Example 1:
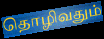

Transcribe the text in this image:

தொழிவதும்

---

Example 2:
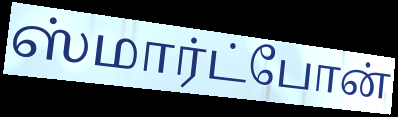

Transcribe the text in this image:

ஸ்மார்ட்போன்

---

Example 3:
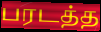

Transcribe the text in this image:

பரடத்த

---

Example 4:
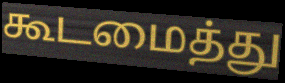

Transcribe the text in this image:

கூடமைத்து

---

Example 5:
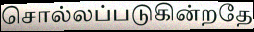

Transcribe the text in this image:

சொல்லப்படுகின்றதே